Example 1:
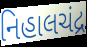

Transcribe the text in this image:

નિહાલચંદ્ર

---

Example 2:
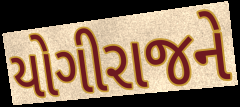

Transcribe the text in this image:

યોગીરાજને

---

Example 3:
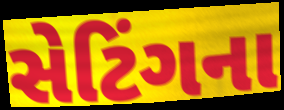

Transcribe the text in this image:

સેટિંગના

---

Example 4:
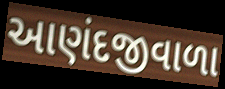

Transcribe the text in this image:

આણંદજીવાળા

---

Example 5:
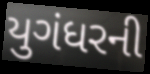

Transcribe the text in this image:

યુગંધરની